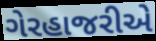
ગેરહાજરીએ